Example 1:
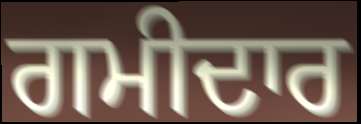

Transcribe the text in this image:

ਗਮੀਦਾਰ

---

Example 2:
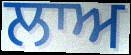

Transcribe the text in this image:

ਲਾਅ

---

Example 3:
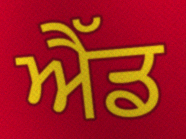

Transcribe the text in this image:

ਐੱਡ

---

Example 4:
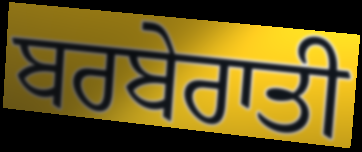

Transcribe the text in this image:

ਬਰਬੇਰਾਤੀ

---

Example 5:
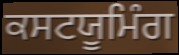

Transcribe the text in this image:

ਕਸਟਯੂਮਿੰਗ